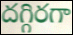
దగ్గిరగా